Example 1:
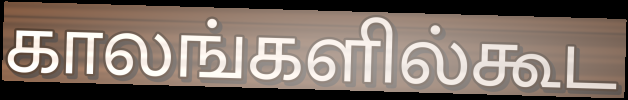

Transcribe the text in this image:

காலங்களில்கூட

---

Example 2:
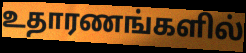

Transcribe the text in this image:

உதாரணங்களில்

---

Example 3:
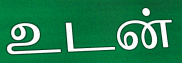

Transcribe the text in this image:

உடன்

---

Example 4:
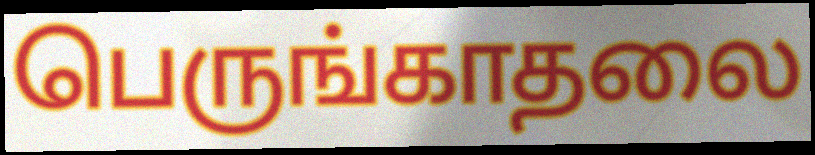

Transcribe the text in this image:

பெருங்காதலை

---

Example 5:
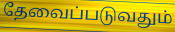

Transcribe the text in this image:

தேவைப்படுவதும்